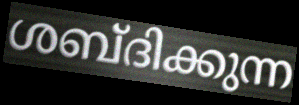
ശബ്ദിക്കുന്ന